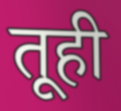
तूही